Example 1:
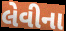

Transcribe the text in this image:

લેવીના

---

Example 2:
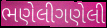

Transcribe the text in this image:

ભણેલીગણેલી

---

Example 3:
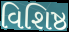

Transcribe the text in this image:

વિશિષ્ઠ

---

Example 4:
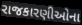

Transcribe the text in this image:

રાજકારણીઓના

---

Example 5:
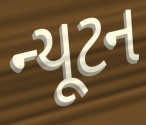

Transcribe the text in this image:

ન્યૂટન